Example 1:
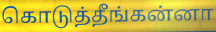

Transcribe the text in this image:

கொடுத்தீங்கன்னா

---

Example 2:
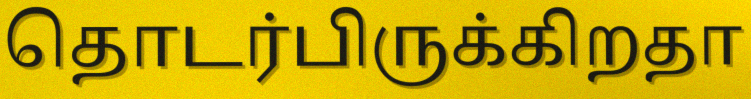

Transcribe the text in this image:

தொடர்பிருக்கிறதா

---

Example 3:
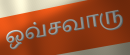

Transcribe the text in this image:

ஒவ்சவாரு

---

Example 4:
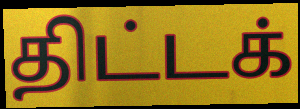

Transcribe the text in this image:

திட்டக்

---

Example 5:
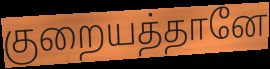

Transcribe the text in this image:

குறையத்தானே